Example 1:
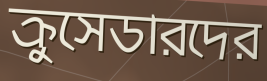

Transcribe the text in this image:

ক্রুসেডারদের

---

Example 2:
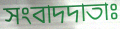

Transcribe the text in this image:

সংবাদদাতাঃ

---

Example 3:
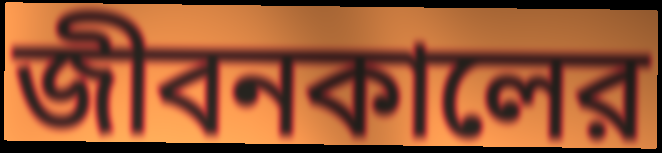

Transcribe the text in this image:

জীবনকালের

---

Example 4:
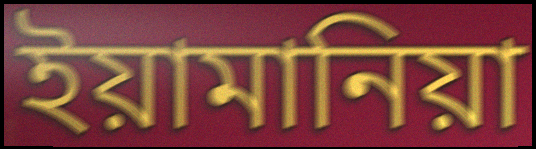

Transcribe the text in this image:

ইয়ামানিয়া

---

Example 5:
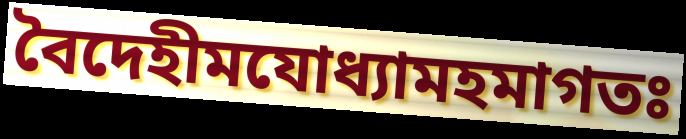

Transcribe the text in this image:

বৈদেহীমযোধ্যামহমাগতঃ